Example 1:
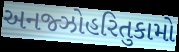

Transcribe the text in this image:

અનજ્ઝોહરિતુકામો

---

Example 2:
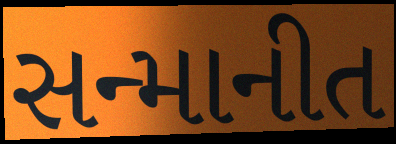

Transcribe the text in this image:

સન્માનીત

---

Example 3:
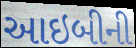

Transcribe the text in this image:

આઇબીની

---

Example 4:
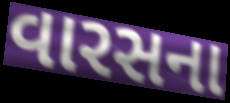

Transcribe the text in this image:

વારસના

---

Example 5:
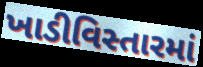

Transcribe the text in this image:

ખાડીવિસ્તારમાં